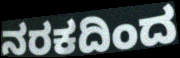
ನರಕದಿಂದ